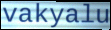
vakyalu